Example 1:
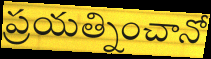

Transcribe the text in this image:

ప్రయత్నించానో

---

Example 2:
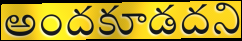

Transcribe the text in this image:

అందకూడదని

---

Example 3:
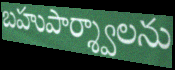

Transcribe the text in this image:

బహుపార్శ్వాలను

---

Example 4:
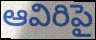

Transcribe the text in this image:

ఆవిరిపై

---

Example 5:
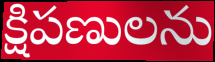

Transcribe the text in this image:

క్షిపణులను